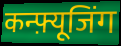
कन्फ़्यूजिंग